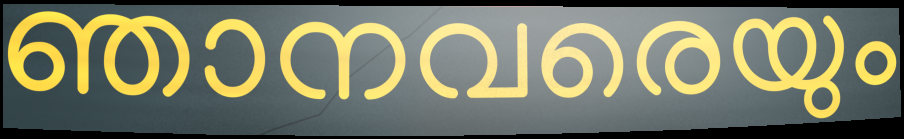
ഞാനവരെയും